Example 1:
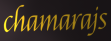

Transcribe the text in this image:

chamarajs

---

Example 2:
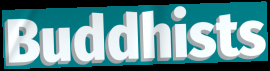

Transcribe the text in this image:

Buddhists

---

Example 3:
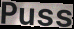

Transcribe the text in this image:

Puss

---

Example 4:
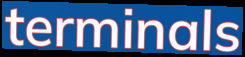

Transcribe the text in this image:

terminals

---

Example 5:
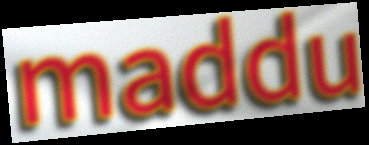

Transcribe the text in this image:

maddu